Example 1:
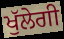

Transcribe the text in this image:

ਖੁੱਲੇਗੀ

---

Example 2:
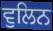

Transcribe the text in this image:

ਵੁਲਿਨ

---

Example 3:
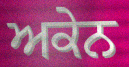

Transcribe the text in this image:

ਅਕੇਨ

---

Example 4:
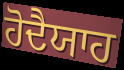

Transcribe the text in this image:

ਹੋਦੈਯਾਹ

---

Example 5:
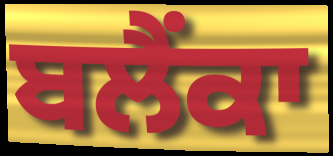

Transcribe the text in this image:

ਬਲੈਂਕਾ